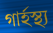
গার্হস্থ্য